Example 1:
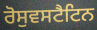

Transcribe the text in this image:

ਰੋਸੁਵਸਟੈਟਿਨ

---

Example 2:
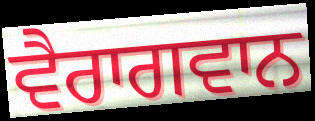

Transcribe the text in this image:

ਵੈਰਾਗਵਾਨ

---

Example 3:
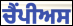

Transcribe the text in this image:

ਚੈਂਪੀਅਸ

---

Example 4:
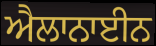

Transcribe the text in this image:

ਐਲਾਨਾਈਨ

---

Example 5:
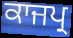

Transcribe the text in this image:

ਕਾਜਪ੍ਰ